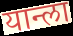
यान्ला